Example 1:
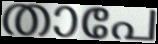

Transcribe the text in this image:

താപേ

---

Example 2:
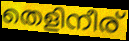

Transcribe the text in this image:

തെളിനീര്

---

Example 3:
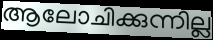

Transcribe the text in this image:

ആലോചിക്കുന്നില്ല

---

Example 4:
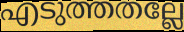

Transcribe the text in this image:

എടുത്തതല്ലേ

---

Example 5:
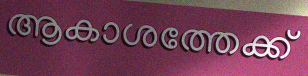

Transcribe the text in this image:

ആകാശത്തേക്ക്